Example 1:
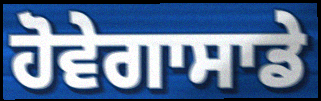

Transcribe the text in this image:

ਹੋਵੇਗਾਸਾਡੇ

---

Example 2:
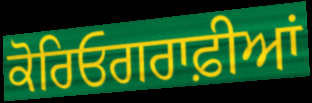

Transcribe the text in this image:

ਕੋਰਿਓਗਰਾਫ਼ੀਆਂ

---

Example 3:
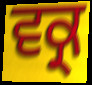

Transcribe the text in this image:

ਵਕ੍ਰ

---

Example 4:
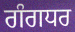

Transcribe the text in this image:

ਗੰਗਧਰ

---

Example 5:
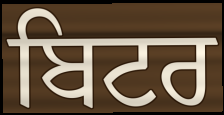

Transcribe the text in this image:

ਬਿਟਰ